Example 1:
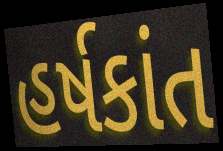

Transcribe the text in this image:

હર્ષકાંત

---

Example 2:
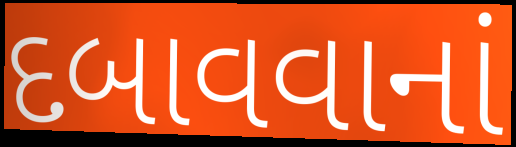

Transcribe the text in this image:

દબાવવાનાં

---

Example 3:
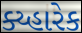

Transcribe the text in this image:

ક્ય્હારેક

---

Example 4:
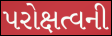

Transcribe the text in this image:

પરોક્ષત્વની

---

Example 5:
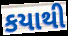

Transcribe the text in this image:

કયાથી